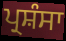
ਪ੍ਰਸ਼ੰਸਾ